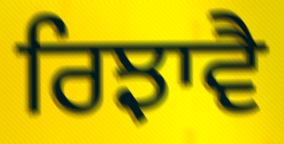
ਰਿਝਾਵੈ